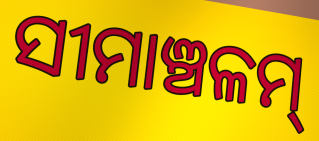
ସୀମାଞ୍ଚଳମ୍